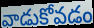
వాడుకోవడం